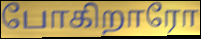
போகிறாரோ